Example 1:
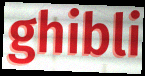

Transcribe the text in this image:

ghibli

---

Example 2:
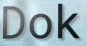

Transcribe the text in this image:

Dok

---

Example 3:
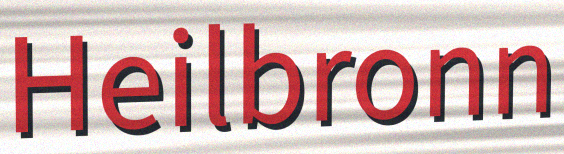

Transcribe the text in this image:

Heilbronn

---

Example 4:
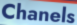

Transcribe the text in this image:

Chanels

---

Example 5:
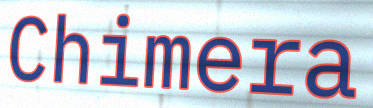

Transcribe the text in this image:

Chimera